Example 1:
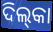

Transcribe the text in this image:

ଦିଲ୍‌କା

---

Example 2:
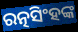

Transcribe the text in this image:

ରତ୍ନସିଂହଙ୍କ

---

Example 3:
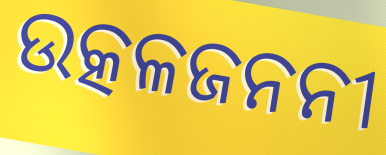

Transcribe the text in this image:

ଉତ୍କଳଜନନୀ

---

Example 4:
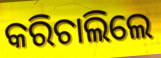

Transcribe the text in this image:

କରିଚାଲିଲେ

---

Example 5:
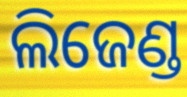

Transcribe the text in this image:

ଲିଜେଣ୍ଡ